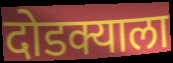
दोडक्याला